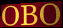
OBO